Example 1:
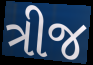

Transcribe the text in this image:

ત્રીજ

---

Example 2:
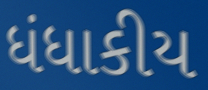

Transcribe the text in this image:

ધંધાકીય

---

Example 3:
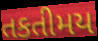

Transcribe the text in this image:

તકતીમય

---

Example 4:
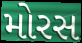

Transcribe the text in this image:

મોરસ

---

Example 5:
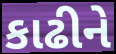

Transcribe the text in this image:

કાઢીને